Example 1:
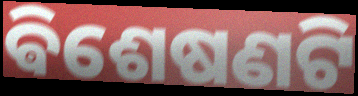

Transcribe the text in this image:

ଵିଶେଷଣଟି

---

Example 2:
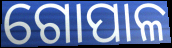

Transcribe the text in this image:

ଗୋପାଳ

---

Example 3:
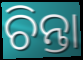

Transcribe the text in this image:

ଚିନ୍ତା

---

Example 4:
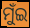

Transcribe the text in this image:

ମୁଁଇ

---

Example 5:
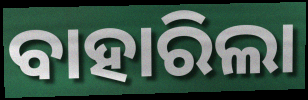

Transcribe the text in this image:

ବାହାରିଲା